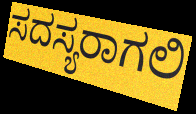
ಸದಸ್ಯರಾಗಲಿ